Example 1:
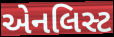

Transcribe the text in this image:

એનલિસ્ટ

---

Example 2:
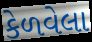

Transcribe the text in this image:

કેળવેલા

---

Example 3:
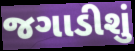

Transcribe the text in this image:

જગાડીશું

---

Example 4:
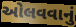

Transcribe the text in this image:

ઓલવવાનું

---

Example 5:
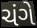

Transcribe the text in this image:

ચંગે